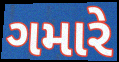
ગમારે